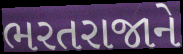
ભરતરાજાને